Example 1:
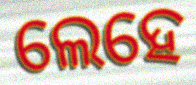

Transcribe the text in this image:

ଲେହେ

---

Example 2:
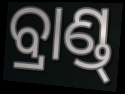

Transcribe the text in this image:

ବ୍ରାଣ୍ଡ୍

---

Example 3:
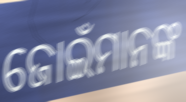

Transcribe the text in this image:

ଜୋଇଁମାନଙ୍କ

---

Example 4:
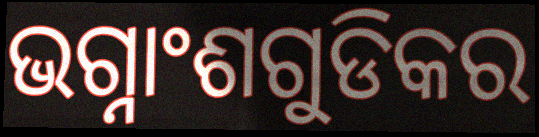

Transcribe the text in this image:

ଭଗ୍ନାଂଶଗୁଡିକର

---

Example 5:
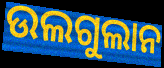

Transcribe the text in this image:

ଉଲଗୁଲାନ